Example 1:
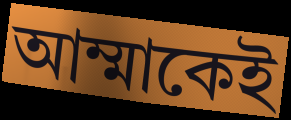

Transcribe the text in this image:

আম্মাকেই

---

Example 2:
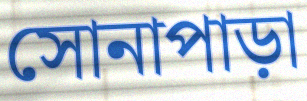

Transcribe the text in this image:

সোনাপাড়া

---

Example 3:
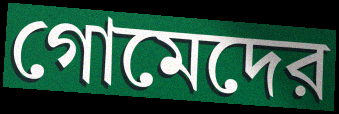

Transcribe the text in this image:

গোমেদের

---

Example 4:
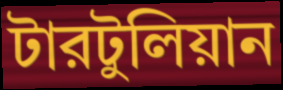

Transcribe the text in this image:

টারটুলিয়ান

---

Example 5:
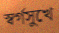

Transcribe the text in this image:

স্বর্গসুখে